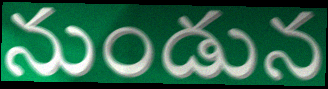
నుండున